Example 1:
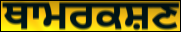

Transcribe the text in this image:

ਥਾਮਰਕਸ਼ਣ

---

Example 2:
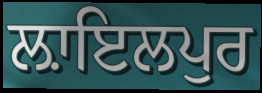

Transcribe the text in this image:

ਲ਼ਾਇਲਪੁਰ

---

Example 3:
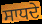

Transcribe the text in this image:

ਸਾਧਦੇ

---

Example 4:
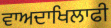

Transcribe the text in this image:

ਵਾਅਦਾਖਿਲਾਫੀ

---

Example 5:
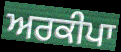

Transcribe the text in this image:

ਅਰਕੀਪਾ